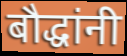
बौद्धांनी